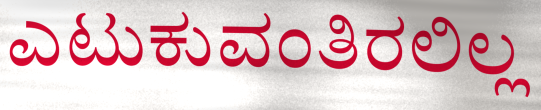
ಎಟುಕುವಂತಿರಲಿಲ್ಲ